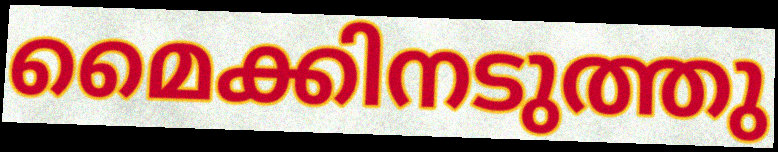
മൈക്കിനടുത്തു